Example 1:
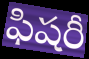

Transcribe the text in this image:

ఫిషరీ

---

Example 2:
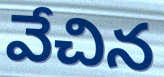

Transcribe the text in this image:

వేచిన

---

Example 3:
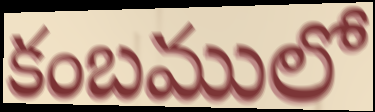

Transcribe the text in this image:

కంబములో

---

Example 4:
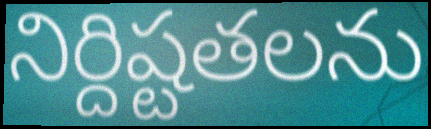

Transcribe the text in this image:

నిర్దిష్టతలను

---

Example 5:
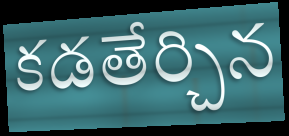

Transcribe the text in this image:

కడతేర్చిన